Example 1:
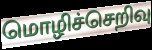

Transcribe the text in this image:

மொழிச்செறிவு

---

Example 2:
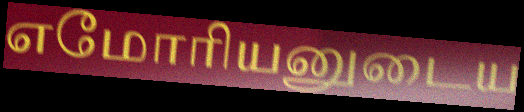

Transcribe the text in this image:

எமோரியனுடைய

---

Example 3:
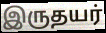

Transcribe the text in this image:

இருதயர்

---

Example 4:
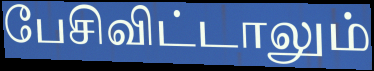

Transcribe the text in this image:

பேசிவிட்டாலும்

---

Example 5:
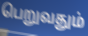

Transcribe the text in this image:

பெறுவதும்